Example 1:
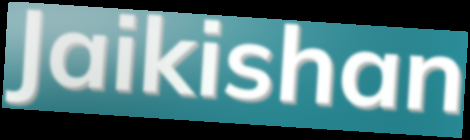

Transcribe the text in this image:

Jaikishan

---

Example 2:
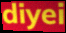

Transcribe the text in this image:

diyei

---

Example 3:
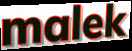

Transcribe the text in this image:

malek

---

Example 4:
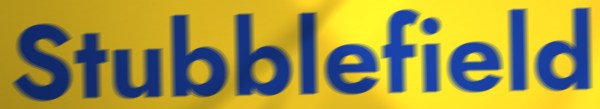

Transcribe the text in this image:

Stubblefield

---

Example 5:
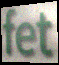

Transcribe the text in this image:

fet